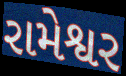
રામેશ્વર